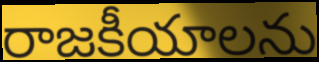
రాజకీయాలను